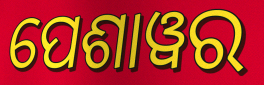
ପେଶାୱର